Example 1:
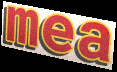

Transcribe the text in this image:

mea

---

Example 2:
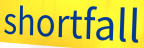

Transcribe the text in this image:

shortfall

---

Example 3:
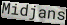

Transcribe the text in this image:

Midjans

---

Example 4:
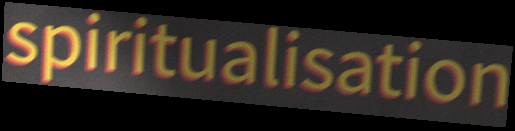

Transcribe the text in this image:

spiritualisation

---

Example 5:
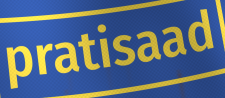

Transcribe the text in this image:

pratisaad